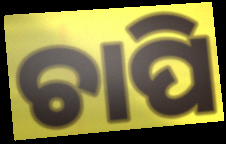
ଚାପି